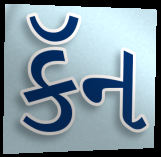
કૅન